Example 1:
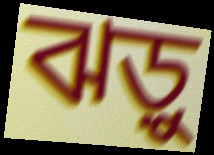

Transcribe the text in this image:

ঝড়ু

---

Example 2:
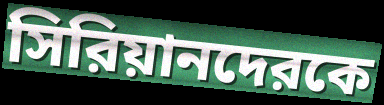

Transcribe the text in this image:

সিরিয়ানদেরকে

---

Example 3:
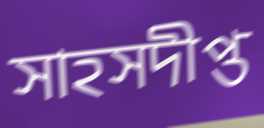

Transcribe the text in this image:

সাহসদীপ্ত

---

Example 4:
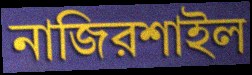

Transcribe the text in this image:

নাজিরশাইল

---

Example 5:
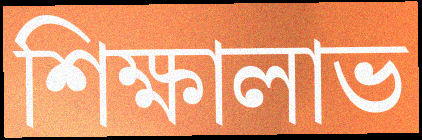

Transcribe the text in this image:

শিক্ষালাভ